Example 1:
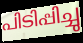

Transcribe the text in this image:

പിടിപ്പിച്ചു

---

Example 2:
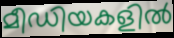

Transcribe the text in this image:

മീഡിയകളിൽ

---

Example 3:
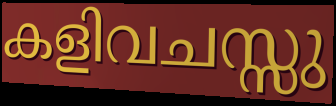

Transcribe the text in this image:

കളിവചസ്സു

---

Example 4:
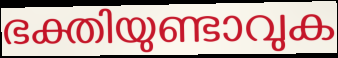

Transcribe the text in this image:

ഭക്തിയുണ്ടാവുക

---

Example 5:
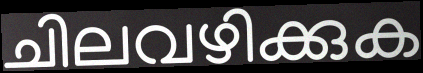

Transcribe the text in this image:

ചിലവഴിക്കുക